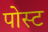
पोस्‍ट